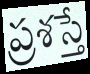
ప్రశస్తే